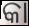
କା